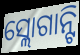
ସ୍ଲୋଗାନ୍ଟି